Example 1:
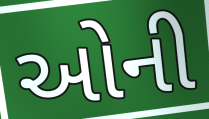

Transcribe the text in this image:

ઓની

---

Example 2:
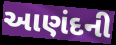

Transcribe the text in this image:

આણંદની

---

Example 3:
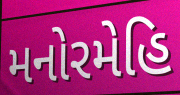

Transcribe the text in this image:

મનોરમેહિ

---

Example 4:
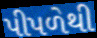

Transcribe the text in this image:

પીપળેથી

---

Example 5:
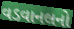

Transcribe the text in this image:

વડવાનલનો